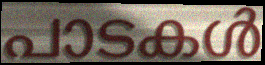
പാടകൾ